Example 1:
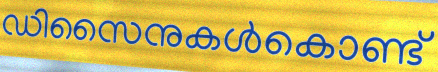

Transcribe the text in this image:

ഡിസൈനുകൾകൊണ്ട്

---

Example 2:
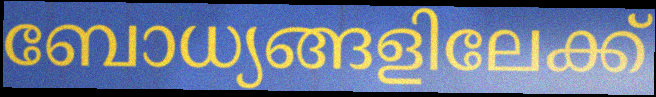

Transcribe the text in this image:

ബോധ്യങ്ങളിലേക്ക്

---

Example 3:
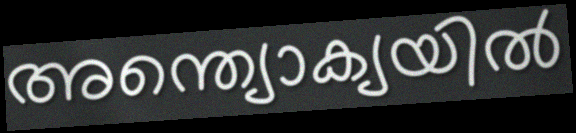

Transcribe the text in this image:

അന്ത്യൊക്യയിൽ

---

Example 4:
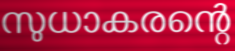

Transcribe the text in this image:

സുധാകരന്റെ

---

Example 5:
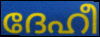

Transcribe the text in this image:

ദേഹീ